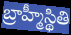
బ్రాహ్మీస్థితి